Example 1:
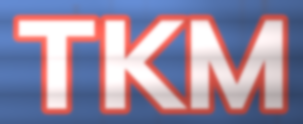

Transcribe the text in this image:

TKM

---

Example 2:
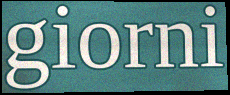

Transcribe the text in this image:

giorni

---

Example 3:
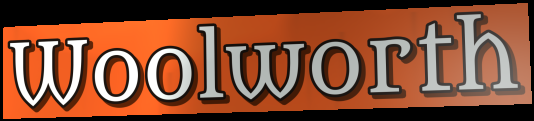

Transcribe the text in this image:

Woolworth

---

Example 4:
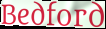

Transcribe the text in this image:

Bedford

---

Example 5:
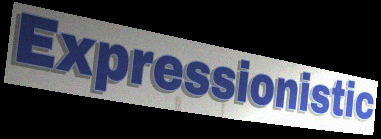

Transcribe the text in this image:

Expressionistic